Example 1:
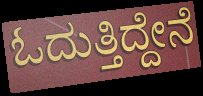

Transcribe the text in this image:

ಓದುತ್ತಿದ್ದೇನೆ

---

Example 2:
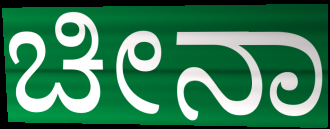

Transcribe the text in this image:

ಚೀನಾ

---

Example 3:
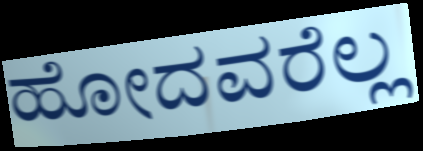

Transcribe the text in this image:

ಹೋದವರೆಲ್ಲ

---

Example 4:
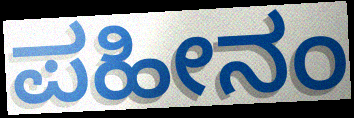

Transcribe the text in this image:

ಪಹೀನಂ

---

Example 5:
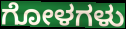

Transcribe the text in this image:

ಗೋಳಗಳು